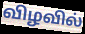
விழவில்